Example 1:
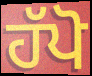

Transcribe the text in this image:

ਹੱਪੋ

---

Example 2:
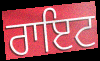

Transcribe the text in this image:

ਰਾਇਟ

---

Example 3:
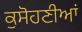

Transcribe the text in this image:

ਕੁਸੋਹਣੀਆਂ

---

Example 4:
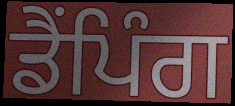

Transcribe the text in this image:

ਡੈਂਪਿੰਗ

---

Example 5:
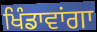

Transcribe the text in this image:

ਖਿੰਡਾਵਾਂਗਾ